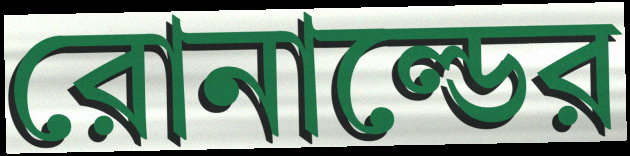
রোনাল্ডের